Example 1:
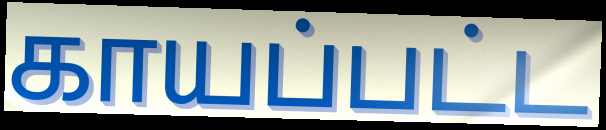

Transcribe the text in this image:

காயப்பட்ட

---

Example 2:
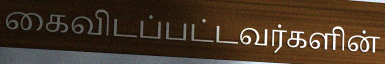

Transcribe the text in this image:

கைவிடப்பட்டவர்களின்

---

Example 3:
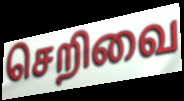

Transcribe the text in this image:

செறிவை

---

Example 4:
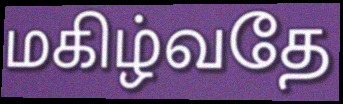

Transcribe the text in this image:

மகிழ்வதே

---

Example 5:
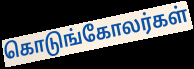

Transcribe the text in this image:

கொடுங்கோலர்கள்